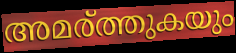
അമര്ത്തുകയും